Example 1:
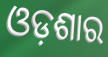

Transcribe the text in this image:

ଓଡ଼ଶାର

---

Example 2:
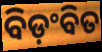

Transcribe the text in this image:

ବିଡ଼ଂବିତ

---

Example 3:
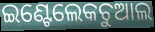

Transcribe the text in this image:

ଇଣ୍ଟେଲେକଚୁଆଲ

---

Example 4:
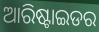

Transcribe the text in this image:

ଆରିଷ୍ଟାଇଡର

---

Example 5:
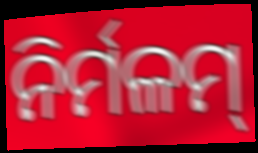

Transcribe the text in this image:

ନିର୍ମଳମ୍